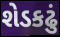
શેડકઢું